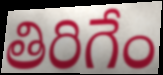
తిరిగేం